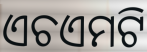
ଏଚଏମଟି